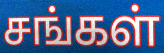
சங்கள்